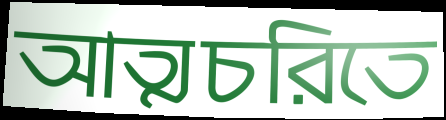
আত্মচরিতে